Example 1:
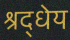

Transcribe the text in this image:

श्रद्धेय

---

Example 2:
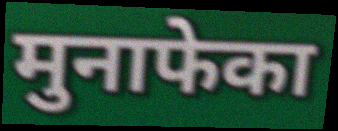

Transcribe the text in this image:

मुनाफेका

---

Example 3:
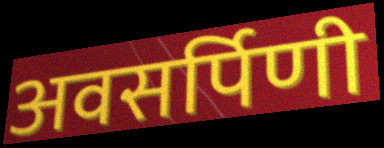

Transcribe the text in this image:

अवसर्पिणी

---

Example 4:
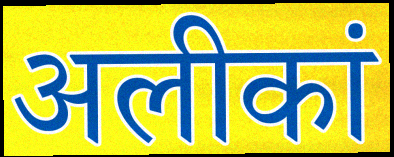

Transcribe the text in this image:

अलीकां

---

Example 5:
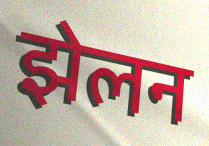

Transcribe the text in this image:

झेलन